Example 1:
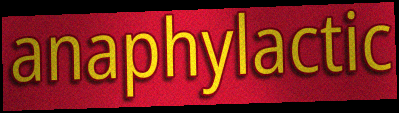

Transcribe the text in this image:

anaphylactic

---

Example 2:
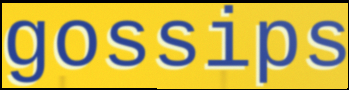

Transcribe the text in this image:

gossips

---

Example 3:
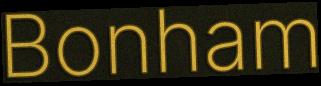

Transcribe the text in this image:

Bonham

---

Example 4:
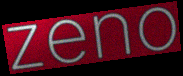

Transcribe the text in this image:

zeno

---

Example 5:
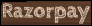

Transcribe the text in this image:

Razorpay